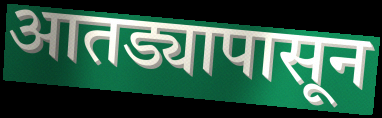
आतड्यापासून